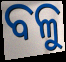
ବଳୁ